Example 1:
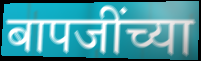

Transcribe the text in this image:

बापजींच्या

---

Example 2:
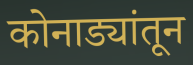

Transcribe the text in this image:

कोनाड्यांतून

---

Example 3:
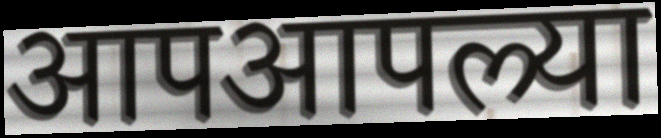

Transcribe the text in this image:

आपआपल्या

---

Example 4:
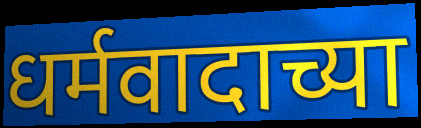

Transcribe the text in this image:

धर्मवादाच्या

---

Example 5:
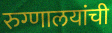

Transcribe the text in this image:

रुग्णालयांची